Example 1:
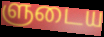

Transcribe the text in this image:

ளுடைய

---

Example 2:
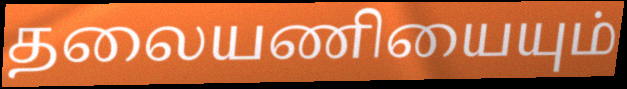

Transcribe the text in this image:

தலையணியையும்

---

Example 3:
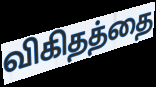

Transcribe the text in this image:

விகிதத்தை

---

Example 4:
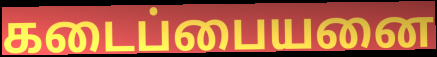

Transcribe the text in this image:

கடைப்பையனை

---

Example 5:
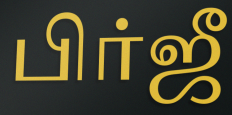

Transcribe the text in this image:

பிர்ஜீ